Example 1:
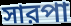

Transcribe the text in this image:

সারপা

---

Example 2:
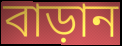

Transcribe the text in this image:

বাড়ান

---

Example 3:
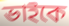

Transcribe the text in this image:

ভাইকে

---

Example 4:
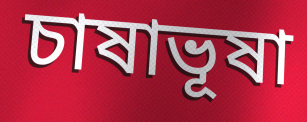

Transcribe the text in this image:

চাষাভূষা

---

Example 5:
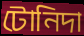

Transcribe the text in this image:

টোনিদা